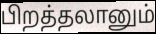
பிறத்தலானும்